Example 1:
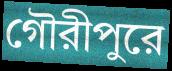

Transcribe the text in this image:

গৌরীপুরে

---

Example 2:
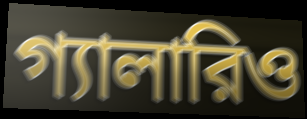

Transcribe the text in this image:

গ্যালারিও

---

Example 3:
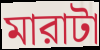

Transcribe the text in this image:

মারাটা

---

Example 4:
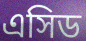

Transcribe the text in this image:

এসিড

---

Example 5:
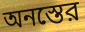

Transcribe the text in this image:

অনস্তের